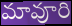
మావూరి